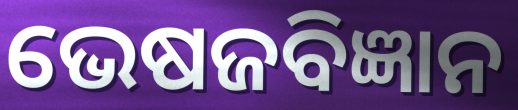
ଭେଷଜବିଜ୍ଞାନ